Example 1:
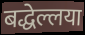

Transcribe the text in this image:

बद्धेल्लया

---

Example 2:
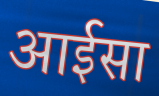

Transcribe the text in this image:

आईसा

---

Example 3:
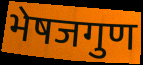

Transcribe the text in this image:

भेषजगुण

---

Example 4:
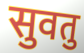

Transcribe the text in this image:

सुवतु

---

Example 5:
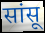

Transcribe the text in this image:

सांसू